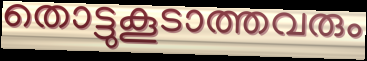
തൊട്ടുകൂടാത്തവരും